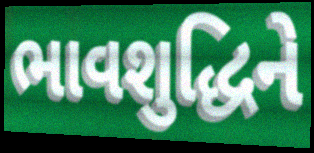
ભાવશુદ્ધિને